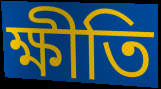
ক্ষীতি